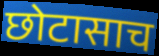
छोटासाच